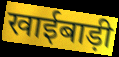
खाईबाड़ी